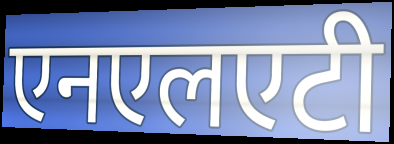
एनएलएटी